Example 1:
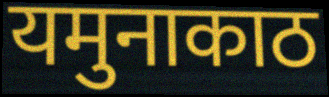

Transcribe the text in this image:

यमुनाकाठ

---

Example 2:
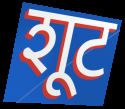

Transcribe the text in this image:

शूट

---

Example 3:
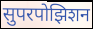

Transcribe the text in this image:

सुपरपोझिशन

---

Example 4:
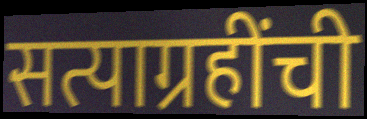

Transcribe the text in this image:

सत्याग्रहींची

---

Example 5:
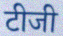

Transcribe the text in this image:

टीजी